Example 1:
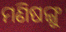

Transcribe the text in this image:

ମଣିଷଙ୍ଗୁ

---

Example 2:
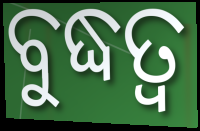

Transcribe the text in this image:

ବୁଦ୍ଧତ୍ଵ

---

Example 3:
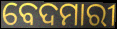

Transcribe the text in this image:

ବେଦମାରୀ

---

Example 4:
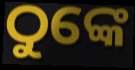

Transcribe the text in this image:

ଠୁଙ୍କେ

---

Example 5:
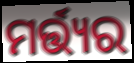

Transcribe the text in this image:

ମର୍ତ୍ତ୍ୟର